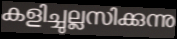
കളിച്ചുല്ലസിക്കുന്നു